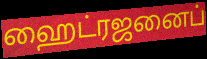
ஹைட்ரஜனைப்